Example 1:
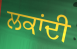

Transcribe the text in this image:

ਲਕਾਂਦੀ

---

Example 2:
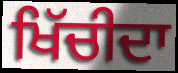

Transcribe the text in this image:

ਖਿੱਚੀਦਾ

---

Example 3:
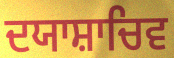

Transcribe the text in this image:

ਦਯਾਸ਼ਾਚਿਵ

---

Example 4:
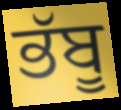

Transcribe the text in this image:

ਭੱਬੂ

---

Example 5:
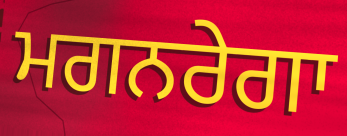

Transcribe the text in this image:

ਮਗਨਰੇਗਾ